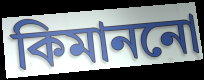
কিমাননো